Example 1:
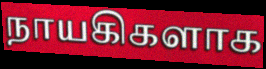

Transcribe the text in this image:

நாயகிகளாக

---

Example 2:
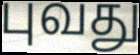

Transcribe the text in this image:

புவது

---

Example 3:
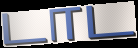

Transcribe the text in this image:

டாட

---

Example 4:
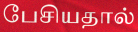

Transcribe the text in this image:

பேசியதால்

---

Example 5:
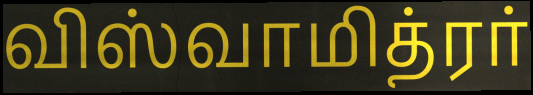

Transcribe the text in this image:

விஸ்வாமித்ரர்